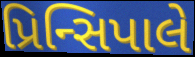
પ્રિન્સિપાલે